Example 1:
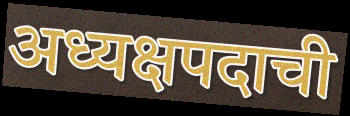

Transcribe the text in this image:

अध्यक्षपदाची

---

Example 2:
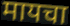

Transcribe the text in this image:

मायचा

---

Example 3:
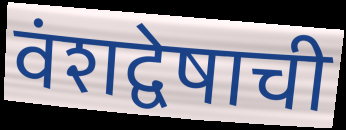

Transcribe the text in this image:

वंशद्वेषाची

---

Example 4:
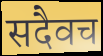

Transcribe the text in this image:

सदैवच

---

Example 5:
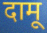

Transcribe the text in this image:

दामू